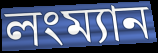
লংম্যান